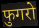
फुगरो